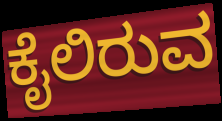
ಕೈಲಿರುವ